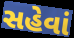
સહેવાં